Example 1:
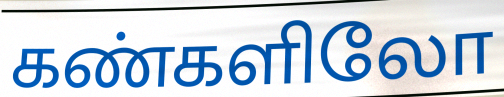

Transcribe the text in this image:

கண்களிலோ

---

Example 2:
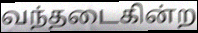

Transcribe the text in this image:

வந்தடைகின்ற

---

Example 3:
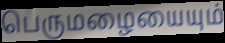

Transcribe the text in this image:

பெருமழையையும்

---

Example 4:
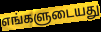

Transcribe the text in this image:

எங்களுடையது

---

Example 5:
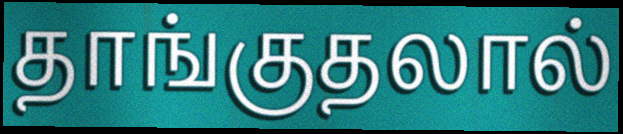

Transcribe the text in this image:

தாங்குதலால்